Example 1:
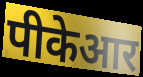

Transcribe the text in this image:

पीकेआर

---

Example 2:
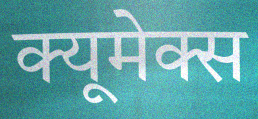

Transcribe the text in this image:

क्यूमेक्स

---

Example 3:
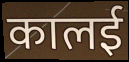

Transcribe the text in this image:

कालई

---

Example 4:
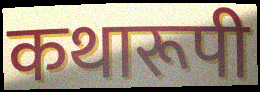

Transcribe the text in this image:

कथारूपी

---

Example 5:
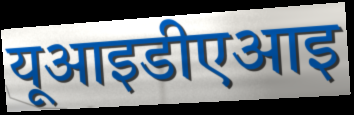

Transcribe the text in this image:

यूआइडीएआइ